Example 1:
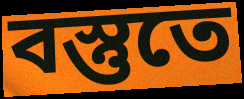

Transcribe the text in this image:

বস্তুতে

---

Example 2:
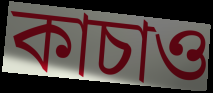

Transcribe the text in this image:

কাচাও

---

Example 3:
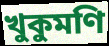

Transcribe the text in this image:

খুকুমণি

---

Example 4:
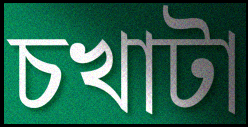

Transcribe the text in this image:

চখাটা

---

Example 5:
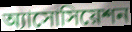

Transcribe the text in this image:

অ্যাসোসিয়েশন